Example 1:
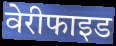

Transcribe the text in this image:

वेरीफाइड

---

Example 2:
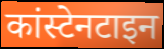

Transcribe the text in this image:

कांस्टेनटाइन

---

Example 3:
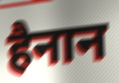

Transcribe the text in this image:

हैनान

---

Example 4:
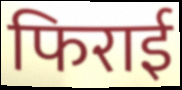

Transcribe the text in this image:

फिराई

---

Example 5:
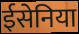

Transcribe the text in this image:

ईसेनिया